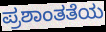
ಪ್ರಶಾಂತತೆಯ